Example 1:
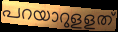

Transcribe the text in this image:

പറയാറുളളത്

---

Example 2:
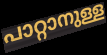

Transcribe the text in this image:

പാറ്റാനുള്ള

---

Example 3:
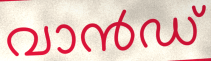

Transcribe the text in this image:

വാൻഡ്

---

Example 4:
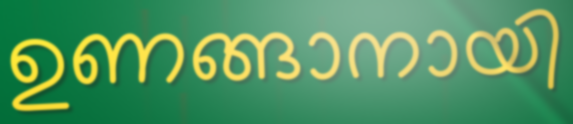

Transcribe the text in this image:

ഉണങ്ങാനായി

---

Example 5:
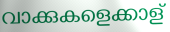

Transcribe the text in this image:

വാക്കുകളെക്കാള്